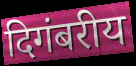
दिगंबरीय